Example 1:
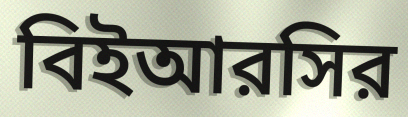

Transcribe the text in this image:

বিইআরসির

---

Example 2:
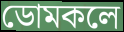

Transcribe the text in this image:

ডোমকলে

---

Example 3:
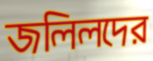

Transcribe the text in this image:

জলিলদের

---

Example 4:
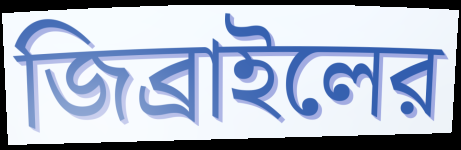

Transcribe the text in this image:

জিব্রাইলের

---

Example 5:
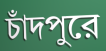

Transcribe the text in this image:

চাঁদপুরে